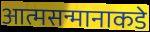
आत्मसन्मानाकडे